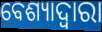
ବେଶ୍ୟାଦ୍ୱାରା